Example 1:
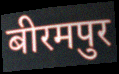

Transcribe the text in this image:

बीरमपुर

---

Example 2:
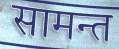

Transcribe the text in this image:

सामन्त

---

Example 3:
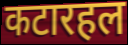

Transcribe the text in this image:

कटारहल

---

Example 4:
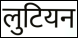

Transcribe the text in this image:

लुटियन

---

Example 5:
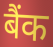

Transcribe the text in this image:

बैंक